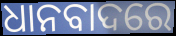
ଧାନବାଦରେ